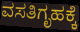
ವಸತಿಗೃಹಕ್ಕೆ